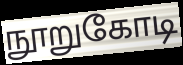
நூறுகோடி